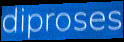
diproses